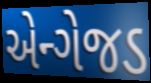
એન્ગેજડ